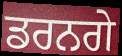
ਡਰਨਗੇ